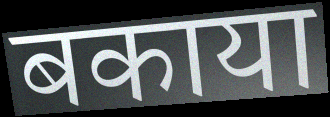
बकाया